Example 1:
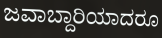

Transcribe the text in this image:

ಜವಾಬ್ದಾರಿಯಾದರೂ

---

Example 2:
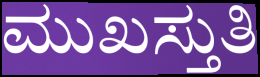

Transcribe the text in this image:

ಮುಖಸ್ತುತಿ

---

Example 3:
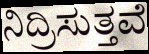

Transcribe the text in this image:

ನಿದ್ರಿಸುತ್ತವೆ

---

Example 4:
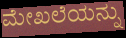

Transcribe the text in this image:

ಮೇಖಲೆಯನ್ನು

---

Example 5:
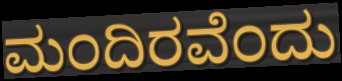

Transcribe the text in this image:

ಮಂದಿರವೆಂದು